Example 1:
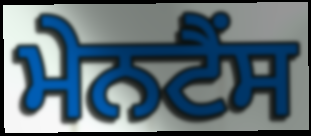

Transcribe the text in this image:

ਮੇਨਟੈਂਸ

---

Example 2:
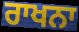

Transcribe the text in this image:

ਰਾਖਨਾ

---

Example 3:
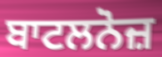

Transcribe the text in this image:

ਬਾਟਲਨੋਜ਼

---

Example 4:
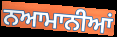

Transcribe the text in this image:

ਨਆਮਾਨੀਆਂ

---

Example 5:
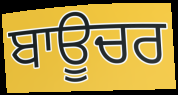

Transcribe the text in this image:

ਬਾਊਚਰ